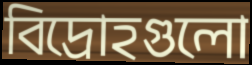
বিদ্রোহগুলো